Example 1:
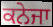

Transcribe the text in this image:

ਕਨੇਜਾ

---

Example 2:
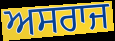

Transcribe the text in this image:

ਅਸਰਾਜ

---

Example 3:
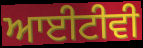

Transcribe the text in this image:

ਆਈਟੀਵੀ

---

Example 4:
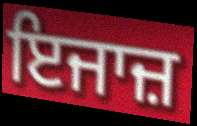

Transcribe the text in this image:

ਇਜਾਜ਼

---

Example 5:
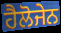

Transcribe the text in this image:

ਹੈਲੋਜੇਨ